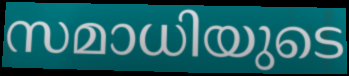
സമാധിയുടെ